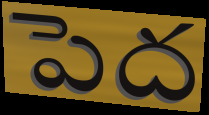
పెద